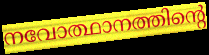
നവോത്ഥാനത്തിന്റെ